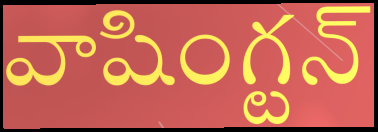
వాషింగ్టన్